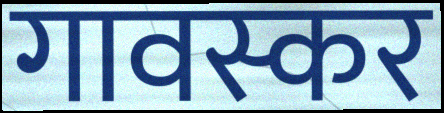
गावस्‍कर